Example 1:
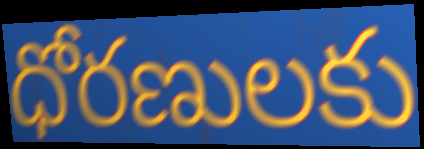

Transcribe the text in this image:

ధోరణులకు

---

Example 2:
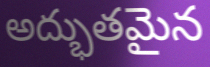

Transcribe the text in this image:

అద్భుతమైన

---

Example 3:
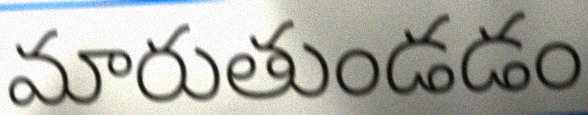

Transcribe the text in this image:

మారుతుండడం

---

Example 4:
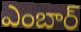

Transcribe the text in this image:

ఎంబార్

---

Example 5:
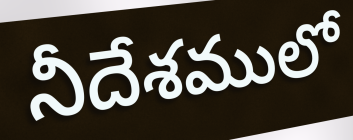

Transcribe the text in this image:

నీదేశములో